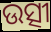
ଉତ୍ସୀ